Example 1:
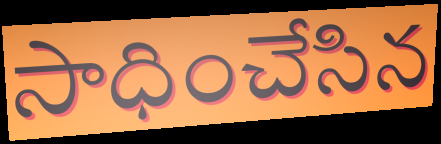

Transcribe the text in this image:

సాధించేసిన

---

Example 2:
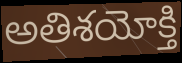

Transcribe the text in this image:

అతిశయోక్తి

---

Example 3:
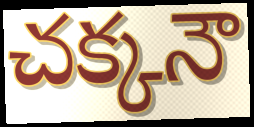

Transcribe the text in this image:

చక్కనౌ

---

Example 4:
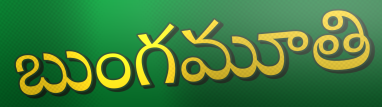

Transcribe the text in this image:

బుంగమూతి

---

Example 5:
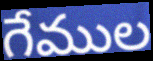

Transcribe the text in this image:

గేముల